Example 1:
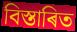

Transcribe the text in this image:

বিস্তাৰিত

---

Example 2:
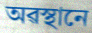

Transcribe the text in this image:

অৱস্থানে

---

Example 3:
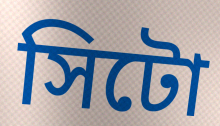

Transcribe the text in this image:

সিটো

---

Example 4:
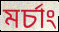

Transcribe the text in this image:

মৰ্চাং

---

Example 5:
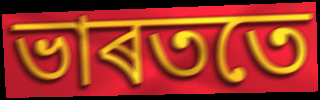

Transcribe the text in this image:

ভাৰততে